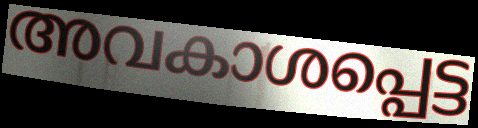
അവകാശപ്പെട്ട